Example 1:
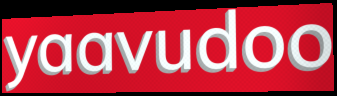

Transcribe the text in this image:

yaavudoo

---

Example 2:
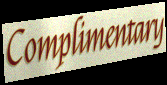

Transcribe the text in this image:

Complimentary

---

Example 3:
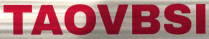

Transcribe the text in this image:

TAOVBSI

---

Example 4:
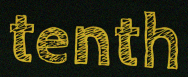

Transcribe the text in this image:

tenth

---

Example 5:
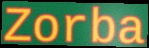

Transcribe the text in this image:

Zorba